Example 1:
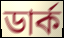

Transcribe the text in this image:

ডার্ক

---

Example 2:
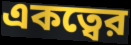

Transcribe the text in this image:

একত্বের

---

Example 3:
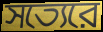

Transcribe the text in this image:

সত্যেরে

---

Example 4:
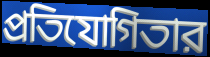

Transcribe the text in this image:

প্রতিযোগিতার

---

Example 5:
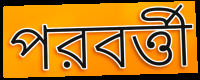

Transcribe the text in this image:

পরবর্ত্তী